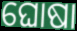
ଘୋଷା